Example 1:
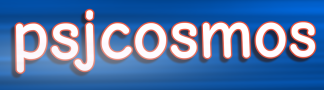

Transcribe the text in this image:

psjcosmos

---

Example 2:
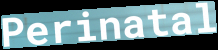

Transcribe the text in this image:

Perinatal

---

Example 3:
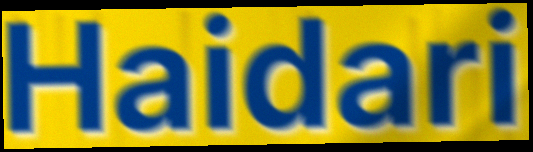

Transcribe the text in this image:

Haidari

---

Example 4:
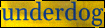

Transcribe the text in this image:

underdog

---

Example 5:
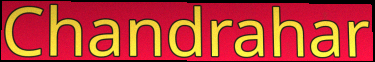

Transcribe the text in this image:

Chandrahar